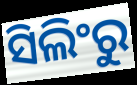
ସିଲିଂରୁ